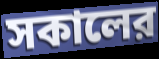
সকালের